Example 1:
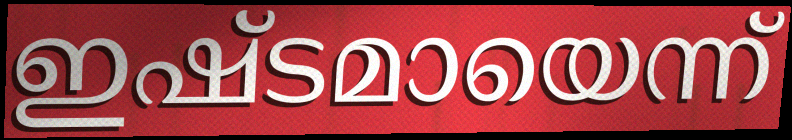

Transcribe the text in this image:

ഇഷ്ടമായെന്ന്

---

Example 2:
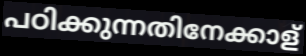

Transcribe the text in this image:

പഠിക്കുന്നതിനേക്കാള്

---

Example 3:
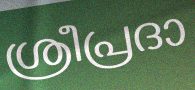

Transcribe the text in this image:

ശ്രീപ്രദാ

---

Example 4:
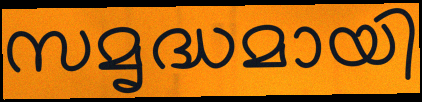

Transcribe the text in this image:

സമൃദ്ധമായി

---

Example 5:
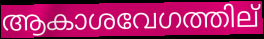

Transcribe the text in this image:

ആകാശവേഗത്തില്